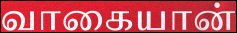
வாகையான்